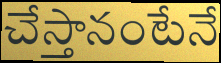
చేస్తానంటేనే